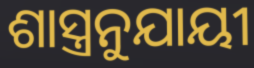
ଶାସ୍ତ୍ରନୁଯାୟୀ